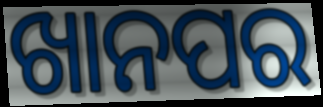
ଖାନପର